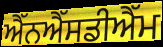
ਐੱਨਐੱਸਡੀਐੱਮ